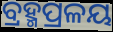
ବ୍ରହ୍ମପ୍ରଳୟ